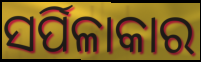
ସର୍ପିଳାକାର